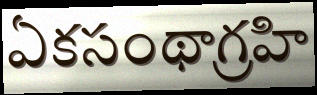
ఏకసంథాగ్రహి